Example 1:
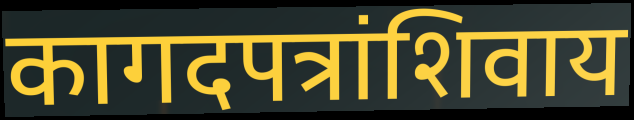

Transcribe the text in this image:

कागदपत्रांशिवाय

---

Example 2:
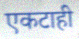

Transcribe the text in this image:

एकटाही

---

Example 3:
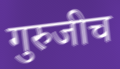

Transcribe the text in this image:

गुरुजीच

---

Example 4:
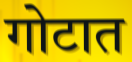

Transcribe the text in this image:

गोटात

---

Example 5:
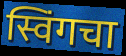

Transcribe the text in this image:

स्विंगचा